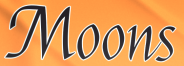
Moons